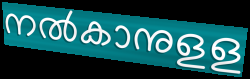
നൽകാനുളള